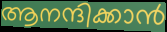
ആനന്ദിക്കാൻ